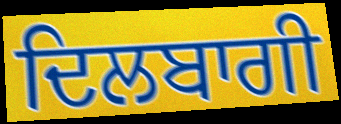
ਦਿਲਬਾਗੀ